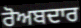
ਰੋਅਬਦਾਰ